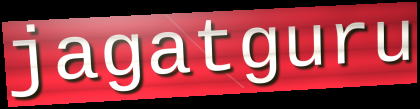
jagatguru